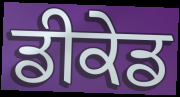
ਡੀਕੇਡ